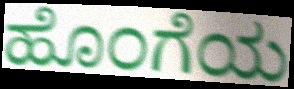
ಹೊಂಗೆಯ